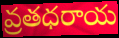
వ్రతధరాయ